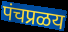
पंचप्रळय